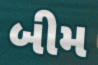
બીમ